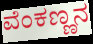
ವೆಂಕಣ್ಣನ